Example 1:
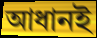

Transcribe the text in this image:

আধানই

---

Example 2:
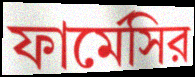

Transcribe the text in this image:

ফার্মেসির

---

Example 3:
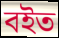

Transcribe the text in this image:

বইত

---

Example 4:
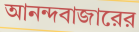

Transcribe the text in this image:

আনন্দবাজারের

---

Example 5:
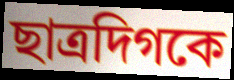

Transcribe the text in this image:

ছাত্রদিগকে